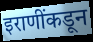
इराणींकडून